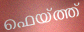
ഫെയ്ത്ത്